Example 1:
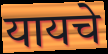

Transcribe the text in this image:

यायचे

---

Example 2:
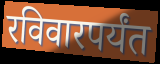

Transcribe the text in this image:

रविवारपर्यंत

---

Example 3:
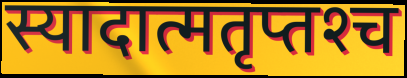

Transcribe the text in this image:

स्यादात्मतृप्तश्च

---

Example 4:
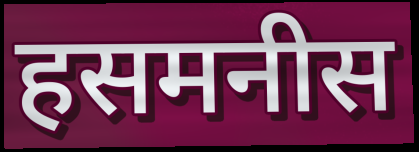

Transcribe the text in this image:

हसमनीस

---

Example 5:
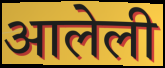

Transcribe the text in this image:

आलेली